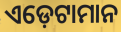
ଏଡ଼େଟାମାନ